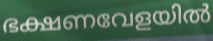
ഭക്ഷണവേളയിൽ